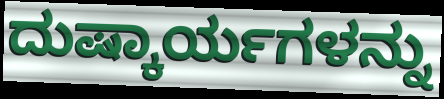
ದುಷ್ಕಾರ್ಯಗಳನ್ನು